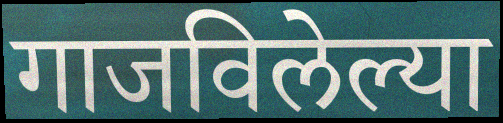
गाजविलेल्या